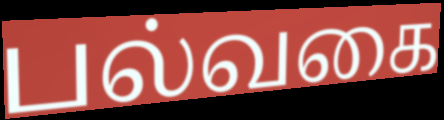
பல்வகை